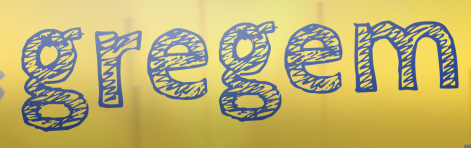
gregem